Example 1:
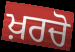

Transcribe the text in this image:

ਖ਼ਰਚੋ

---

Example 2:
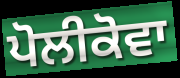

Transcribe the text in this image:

ਪੋਲੀਕੋਵਾ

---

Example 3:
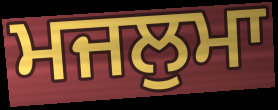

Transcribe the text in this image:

ਮਜਲੁਮਾ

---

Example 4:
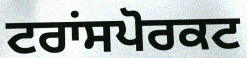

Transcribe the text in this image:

ਟਰਾਂਸਪੋਰਕਟ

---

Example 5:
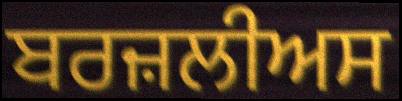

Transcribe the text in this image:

ਬਰਜ਼ਲੀਅਸ